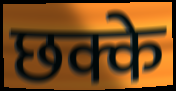
छक्के